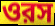
ওরস